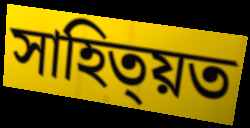
সাহিত্য়ত